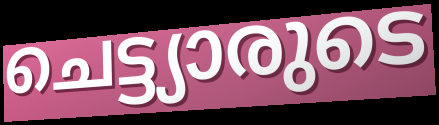
ചെട്ട്യാരുടെ